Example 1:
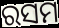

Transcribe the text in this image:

ରସମ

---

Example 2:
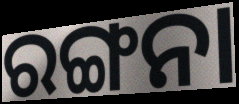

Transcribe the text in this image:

ରଙ୍ଗନା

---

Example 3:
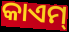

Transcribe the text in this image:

କାଏମ୍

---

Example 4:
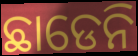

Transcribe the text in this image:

ଛାଡେନି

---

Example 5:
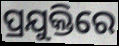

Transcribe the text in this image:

ପ୍ରଯୁକ୍ତିରେ